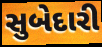
સુબેદારી